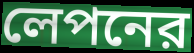
লেপনের